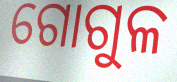
ଗୋଗୁଳ